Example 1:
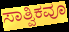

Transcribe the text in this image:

ಸಾತ್ವಿಕವೂ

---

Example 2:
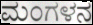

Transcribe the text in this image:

ಮಂಗಳನ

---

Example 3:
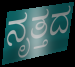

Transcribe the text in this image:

ನೃತ್ತದ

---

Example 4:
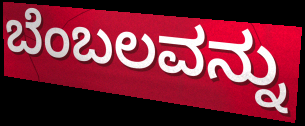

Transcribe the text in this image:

ಬೆಂಬಲವನ್ನು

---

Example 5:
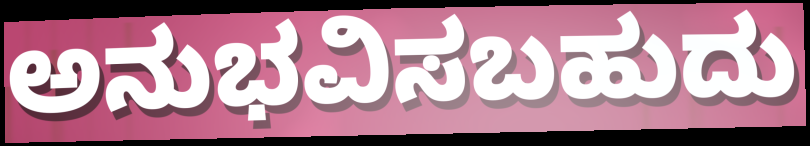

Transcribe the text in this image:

ಅನುಭವಿಸಬಹುದು